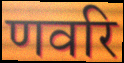
णवरि